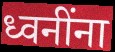
ध्वनींना